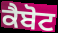
ਕੈਬੋਟ